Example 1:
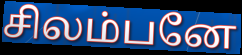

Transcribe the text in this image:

சிலம்பனே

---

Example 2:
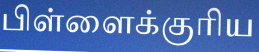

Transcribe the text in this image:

பிள்ளைக்குரிய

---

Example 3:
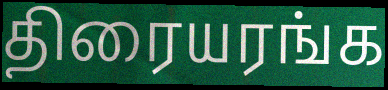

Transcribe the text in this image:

திரையரங்க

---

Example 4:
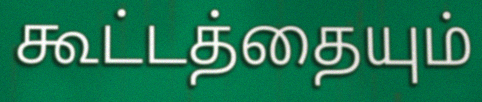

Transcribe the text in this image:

கூட்டத்தையும்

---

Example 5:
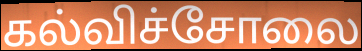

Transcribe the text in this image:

கல்விச்சோலை